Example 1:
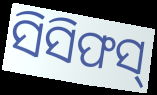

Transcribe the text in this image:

ସିସିଫସ୍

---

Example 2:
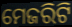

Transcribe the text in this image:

ମେଜରିଟି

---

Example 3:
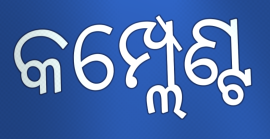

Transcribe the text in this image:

କମ୍ପ୍ଲେଣ୍ଟ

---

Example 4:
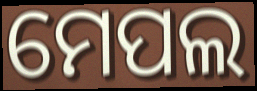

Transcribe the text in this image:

ମେପଲ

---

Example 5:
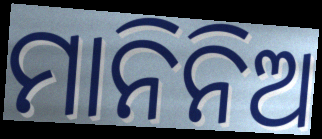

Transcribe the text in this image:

ମାନିନିଅ